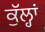
ਕੁੱਲ੍ਹਾਂ